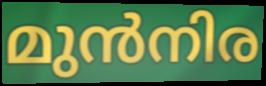
മുൻനിര